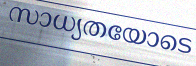
സാധ്യതയോടെ